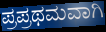
ಪ್ರಪ್ರಥಮವಾಗಿ